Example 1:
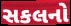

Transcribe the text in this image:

સકલનો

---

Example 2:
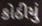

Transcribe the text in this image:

કોઠીયું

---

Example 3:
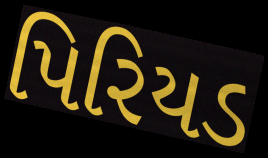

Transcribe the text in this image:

પિરિયડ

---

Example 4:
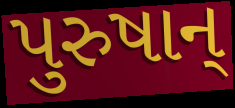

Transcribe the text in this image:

પુરુષાન્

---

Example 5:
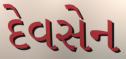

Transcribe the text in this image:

દેવસેન